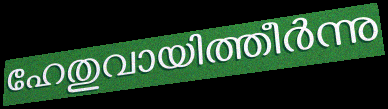
ഹേതുവായിത്തീർന്നു